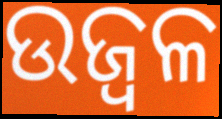
ଉଜ୍ବଳ